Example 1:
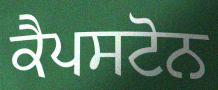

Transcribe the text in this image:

ਕੈਪਸਟੋਨ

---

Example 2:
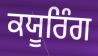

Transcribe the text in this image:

ਕਯੂਰਿੰਗ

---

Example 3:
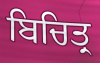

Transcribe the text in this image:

ਬਿਚਿਤ੍ਰ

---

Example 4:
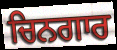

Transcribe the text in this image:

ਚਿਨਗਾਰ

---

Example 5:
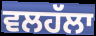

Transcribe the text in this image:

ਵਲਹੱਲਾ